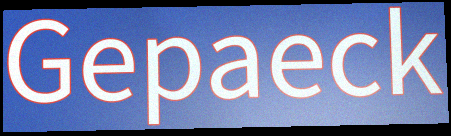
Gepaeck